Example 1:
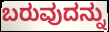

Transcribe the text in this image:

ಬರುವುದನ್ನು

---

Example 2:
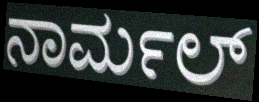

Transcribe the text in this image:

ನಾರ್ಮಲ್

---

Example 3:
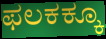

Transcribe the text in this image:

ಫಲಕಕ್ಕೂ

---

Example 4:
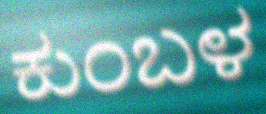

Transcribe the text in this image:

ಕುಂಬಳ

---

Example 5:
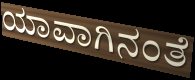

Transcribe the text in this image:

ಯಾವಾಗಿನಂತೆ